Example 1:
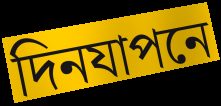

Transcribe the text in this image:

দিনযাপনে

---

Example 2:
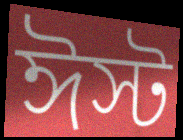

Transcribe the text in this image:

ঈস্ট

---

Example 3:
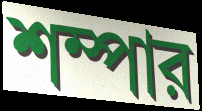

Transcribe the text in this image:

শম্পার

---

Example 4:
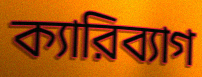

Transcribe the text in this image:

ক্যারিব্যাগ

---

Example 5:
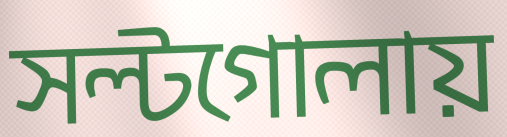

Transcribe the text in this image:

সল্টগোলায়